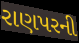
રાણપરની